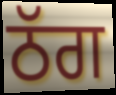
ਠੱਗ